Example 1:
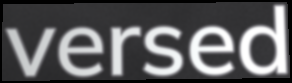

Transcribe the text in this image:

versed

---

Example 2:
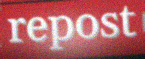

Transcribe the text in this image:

repost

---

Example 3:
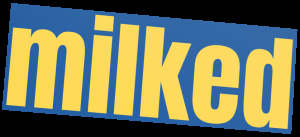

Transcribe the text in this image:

milked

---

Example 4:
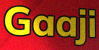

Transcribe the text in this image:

Gaaji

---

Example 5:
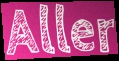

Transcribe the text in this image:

Aller